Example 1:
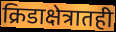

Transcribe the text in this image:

क्रिडाक्षेत्रातही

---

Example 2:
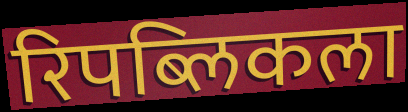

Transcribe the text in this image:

रिपब्लिकला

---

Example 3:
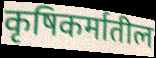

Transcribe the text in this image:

कृषिकर्मातील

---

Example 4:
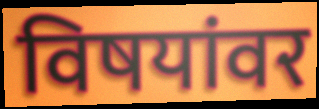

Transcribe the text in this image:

विषयांवर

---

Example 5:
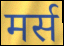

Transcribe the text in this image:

मर्स